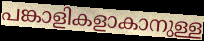
പങ്കാളികളാകാനുള്ള